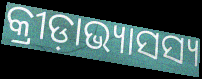
କ୍ରୀଡ଼ାଭ୍ୟାସସ୍ୟ